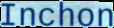
Inchon